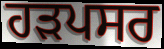
ਹੜਪਸਰ